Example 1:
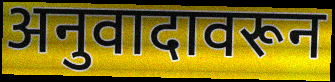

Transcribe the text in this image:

अनुवादावरून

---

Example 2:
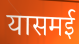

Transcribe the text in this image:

यासमई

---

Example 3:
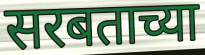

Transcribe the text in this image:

सरबताच्या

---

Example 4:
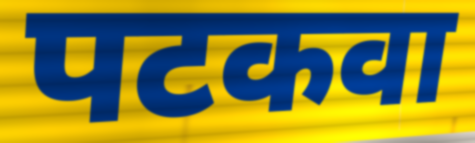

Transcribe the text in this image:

पटकवा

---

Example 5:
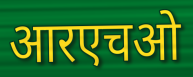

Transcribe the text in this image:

आरएचओ